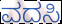
ವದಸಿ